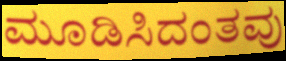
ಮೂಡಿಸಿದಂತವು